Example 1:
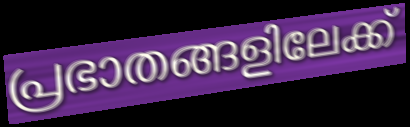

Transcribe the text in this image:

പ്രഭാതങ്ങളിലേക്ക്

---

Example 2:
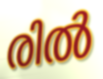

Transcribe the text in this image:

രിൽ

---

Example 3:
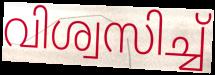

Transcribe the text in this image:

വിശ്വസിച്ച്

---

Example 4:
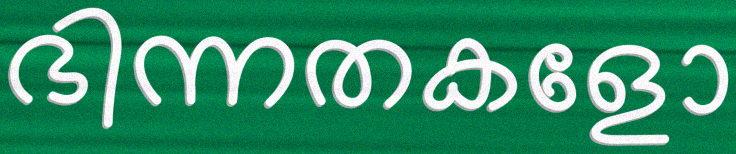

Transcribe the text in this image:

ഭിന്നതകളോ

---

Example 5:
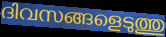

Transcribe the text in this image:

ദിവസങ്ങളെടുത്തു